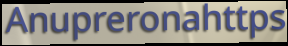
Anupreronahttps